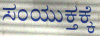
ಸಂಯುಕ್ತಕ್ಕೆ